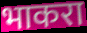
भाकरा